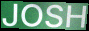
JOSH